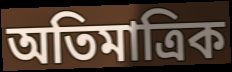
অতিমাত্রিক